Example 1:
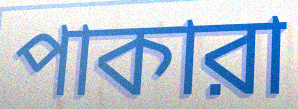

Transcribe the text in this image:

পাকারা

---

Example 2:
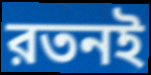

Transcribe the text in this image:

রতনই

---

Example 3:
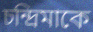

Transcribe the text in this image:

চন্দ্রিমাকে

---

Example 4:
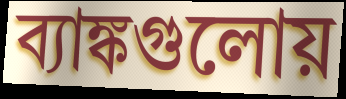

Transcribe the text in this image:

ব্যাঙ্কগুলোয়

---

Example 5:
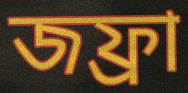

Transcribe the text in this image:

জফ্রা